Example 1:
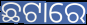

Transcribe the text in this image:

ଛଟାରେ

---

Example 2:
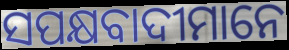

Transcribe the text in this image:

ସପକ୍ଷବାଦୀମାନେ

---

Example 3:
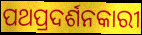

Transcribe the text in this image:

ପଥପ୍ରଦର୍ଶନକାରୀ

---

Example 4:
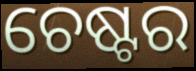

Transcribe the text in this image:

ଚେଷ୍ଟର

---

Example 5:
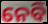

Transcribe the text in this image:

ନେବି